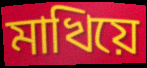
মাখিয়ে